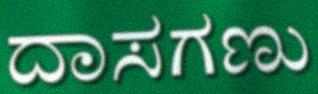
ದಾಸಗಣು